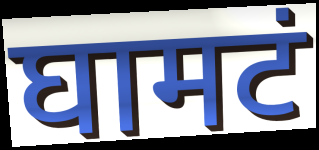
घामटं